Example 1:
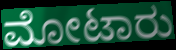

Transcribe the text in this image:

ಮೋಟಾರು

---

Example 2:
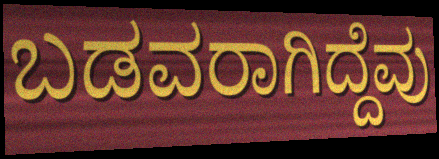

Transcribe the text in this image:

ಬಡವರಾಗಿದ್ದೆವು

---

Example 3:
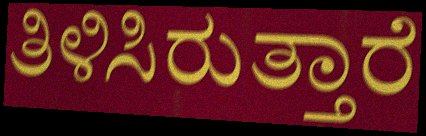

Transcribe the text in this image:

ತಿಳಿಸಿರುತ್ತಾರೆ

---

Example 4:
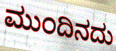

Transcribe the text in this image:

ಮುಂದಿನದು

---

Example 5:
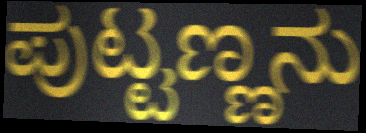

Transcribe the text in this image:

ಪುಟ್ಟಣ್ಣನು